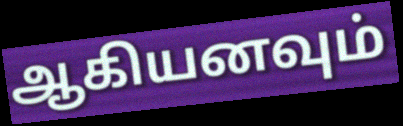
ஆகியனவும்